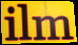
ilm